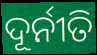
ଦୂର୍ନୀତି